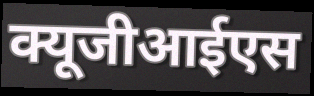
क्यूजीआईएस